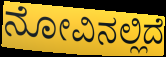
ನೋವಿನಲ್ಲಿದೆ